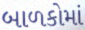
બાળકોમાં